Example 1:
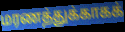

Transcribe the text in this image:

மரணத்துக்காகக்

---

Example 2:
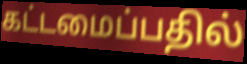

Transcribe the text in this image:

கட்டமைப்பதில்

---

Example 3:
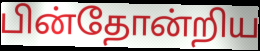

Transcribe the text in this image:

பின்தோன்றிய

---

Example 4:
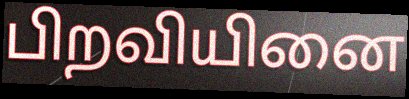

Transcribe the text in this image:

பிறவியினை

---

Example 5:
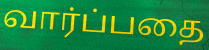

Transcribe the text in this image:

வார்ப்பதை